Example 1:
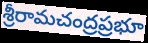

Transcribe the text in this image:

శ్రీరామచంద్రప్రభూ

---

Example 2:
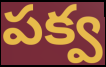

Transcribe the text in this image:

పక్వ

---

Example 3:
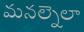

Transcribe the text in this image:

మనల్నెలా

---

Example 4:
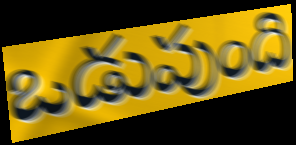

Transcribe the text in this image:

ఒడుపుంది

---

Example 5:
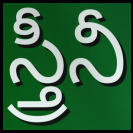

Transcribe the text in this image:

స్త్రీనీ